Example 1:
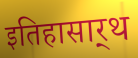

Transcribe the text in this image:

इतिहासार्थ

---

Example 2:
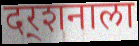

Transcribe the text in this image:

दर्शनाला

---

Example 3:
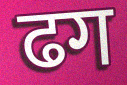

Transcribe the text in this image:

ढग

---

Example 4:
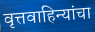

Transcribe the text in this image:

वृत्तवाहिन्यांचा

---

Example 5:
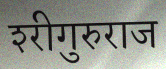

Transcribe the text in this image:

श्रीगुरुराज